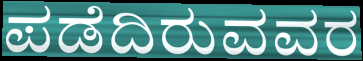
ಪಡೆದಿರುವವರ